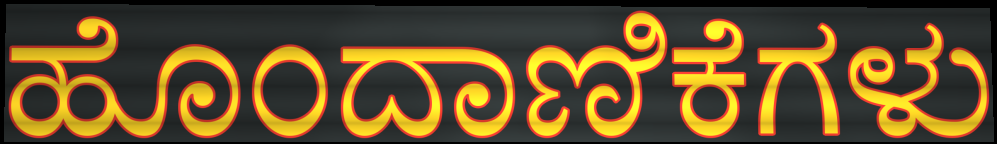
ಹೊಂದಾಣಿಕೆಗಳು